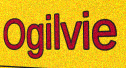
Ogilvie